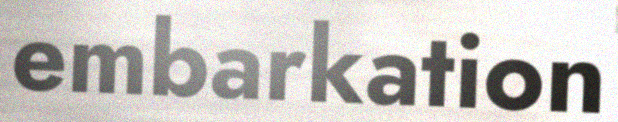
embarkation